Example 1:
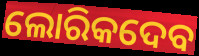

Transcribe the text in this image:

ଲୋରିକଦେବ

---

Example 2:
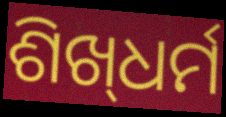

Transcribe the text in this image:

ଶିଖ୍‌ଧର୍ମ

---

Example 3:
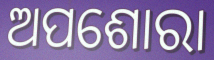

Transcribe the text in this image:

ଅପଶୋରା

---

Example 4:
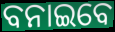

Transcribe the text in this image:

ବନାଇବେ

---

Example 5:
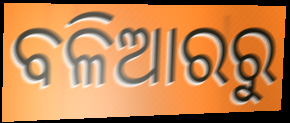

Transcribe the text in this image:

ବଳିଆରରୁ